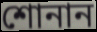
শোনান